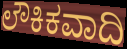
ಲೌಕಿಕವಾದಿ